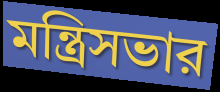
মন্ত্রিসভার